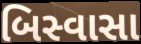
બિસ્વાસા